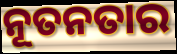
ନୂତନତାର